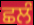
ਛਲੰ